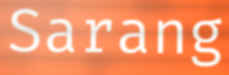
Sarang